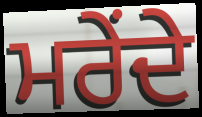
ਮਰੇਂਦੇ